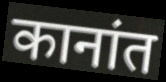
कानांत